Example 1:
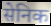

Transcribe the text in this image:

सेनिक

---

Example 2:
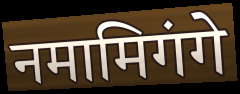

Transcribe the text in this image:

नमामिगंगे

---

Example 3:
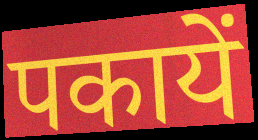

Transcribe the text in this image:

पकायें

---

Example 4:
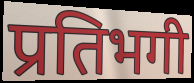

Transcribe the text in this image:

प्रतिभगी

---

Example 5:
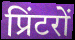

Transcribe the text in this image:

प्रिंटरों